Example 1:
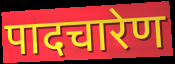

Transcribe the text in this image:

पादचारेण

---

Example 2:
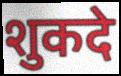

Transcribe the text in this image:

शुकदे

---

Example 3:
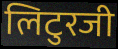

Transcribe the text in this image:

लिटुरजी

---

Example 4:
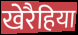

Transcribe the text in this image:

खेरैहिया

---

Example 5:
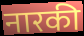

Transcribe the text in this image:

नारकी